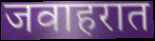
जवाहरात